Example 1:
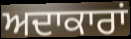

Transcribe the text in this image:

ਅਦਾਕਾਰਾਂ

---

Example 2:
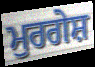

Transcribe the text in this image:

ਮੁਰਗੇਸ਼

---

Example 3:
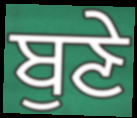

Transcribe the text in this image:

ਬੁਣੇ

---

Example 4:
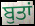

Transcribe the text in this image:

ਬੁਤਾਂ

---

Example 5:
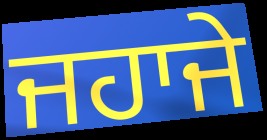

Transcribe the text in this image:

ਜਹਾਜੇ